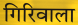
गिरिवाला